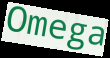
Omega